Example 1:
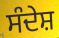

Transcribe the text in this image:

ਸੰਦੇਸ਼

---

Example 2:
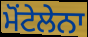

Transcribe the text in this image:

ਮੋਂਟੇਲੇਨਾ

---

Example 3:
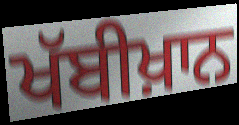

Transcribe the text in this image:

ਖੱਬੀਖ਼ਾਨ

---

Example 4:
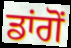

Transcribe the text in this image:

ਡਾਂਗੋਂ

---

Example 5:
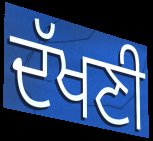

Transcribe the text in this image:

ਦੱਖਣੀ